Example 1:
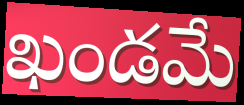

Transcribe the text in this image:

ఖండమే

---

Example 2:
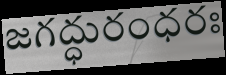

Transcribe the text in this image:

జగద్ధురంధరః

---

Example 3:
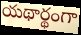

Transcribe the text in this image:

యథార్థంగా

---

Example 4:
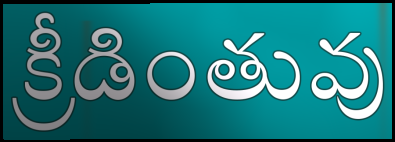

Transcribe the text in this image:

క్రీడింతువు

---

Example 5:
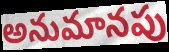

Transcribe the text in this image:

అనుమానపు